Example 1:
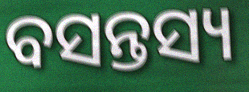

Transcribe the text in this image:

ବସନ୍ତସ୍ୟ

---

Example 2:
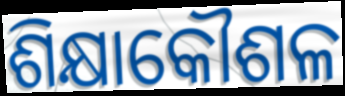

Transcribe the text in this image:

ଶିକ୍ଷାକୌଶଳ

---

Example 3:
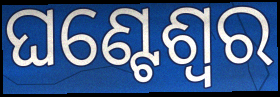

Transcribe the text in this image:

ଘଣ୍ଟେଶ୍ୱର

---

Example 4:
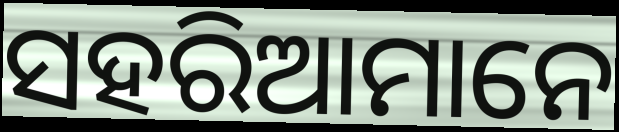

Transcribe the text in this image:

ସହରିଆମାନେ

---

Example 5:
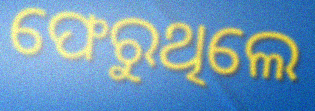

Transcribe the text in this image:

ଫେରୁଥିଲେ